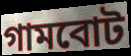
গামবোট